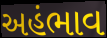
અહંભાવ